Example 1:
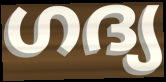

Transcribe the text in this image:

ഗദ്യ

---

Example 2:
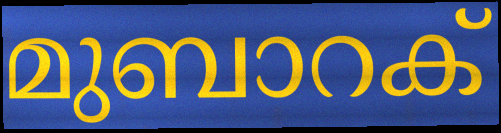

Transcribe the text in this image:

മുബാറക്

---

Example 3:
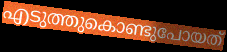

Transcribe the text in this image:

എടുത്തുകൊണ്ടുപോയത്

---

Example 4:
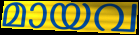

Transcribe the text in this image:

മായവ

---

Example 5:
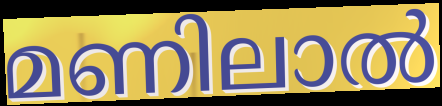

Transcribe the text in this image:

മണിലാൽ